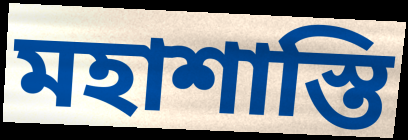
মহাশাস্তি